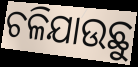
ଚଳିଯାଉଛୁ